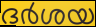
ദർശയ